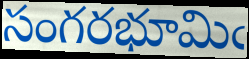
సంగరభూమిఁ